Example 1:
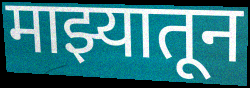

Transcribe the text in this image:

माझ्यातून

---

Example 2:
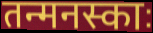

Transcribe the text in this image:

तन्मनस्काः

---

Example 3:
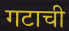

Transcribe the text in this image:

गटाची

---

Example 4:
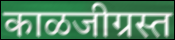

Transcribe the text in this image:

काळजीग्रस्त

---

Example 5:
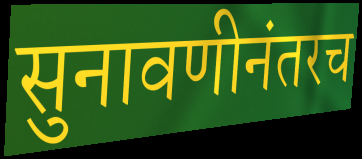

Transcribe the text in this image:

सुनावणीनंतरच